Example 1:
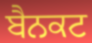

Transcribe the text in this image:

ਬੈਨਕਟ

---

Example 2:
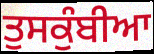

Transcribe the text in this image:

ਤੁਸਕੁੰਬੀਆ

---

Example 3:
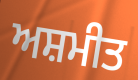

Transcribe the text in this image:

ਅਸ਼ਮੀਤ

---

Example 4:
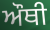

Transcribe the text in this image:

ਔਥੀ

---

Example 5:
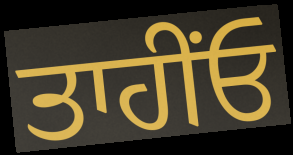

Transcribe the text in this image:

ਤਾਹੀਂਓ